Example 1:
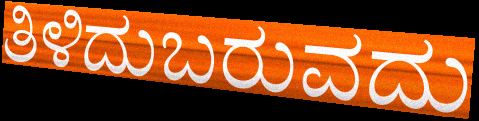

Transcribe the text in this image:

ತಿಳಿದುಬರುವದು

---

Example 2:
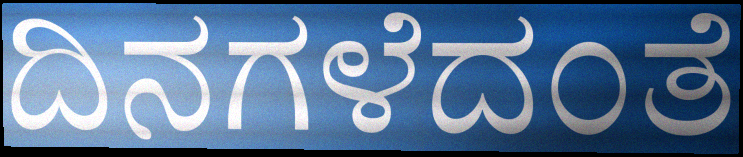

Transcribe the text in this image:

ದಿನಗಳೆದಂತೆ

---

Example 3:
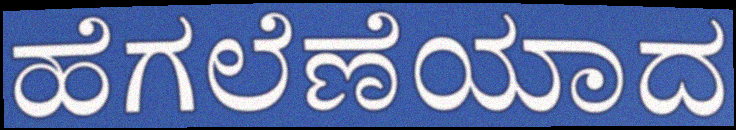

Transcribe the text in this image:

ಹೆಗಲೆಣೆಯಾದ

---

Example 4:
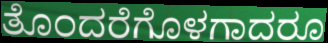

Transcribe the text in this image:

ತೊಂದರೆಗೊಳಗಾದರೂ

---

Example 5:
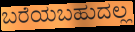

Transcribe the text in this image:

ಬರೆಯಬಹುದಲ್ಲ